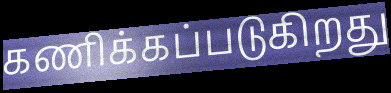
கணிக்கப்படுகிறது